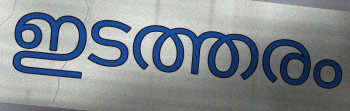
ഇടത്തരം